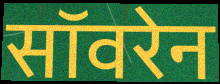
सॉवरेन